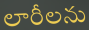
లారీలను